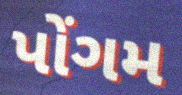
પોંગમ